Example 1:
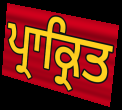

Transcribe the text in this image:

ਪ੍ਰਾਕ੍ਰਿਤ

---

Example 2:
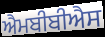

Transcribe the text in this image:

ਐਮਬੀਬੀਐਸ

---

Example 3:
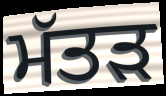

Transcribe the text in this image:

ਮੱਤੜ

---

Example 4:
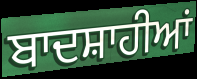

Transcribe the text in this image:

ਬਾਦਸ਼ਾਹੀਆਂ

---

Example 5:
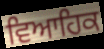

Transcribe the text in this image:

ਵਿਆਹਿਕ